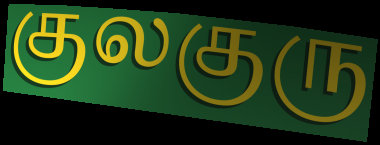
குலகுரு